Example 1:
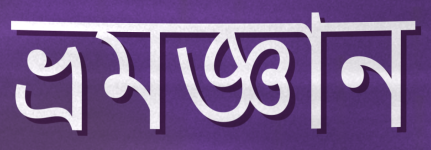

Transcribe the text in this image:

ভ্রমজ্ঞান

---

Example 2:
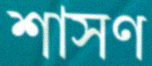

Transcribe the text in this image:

শাসণ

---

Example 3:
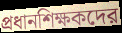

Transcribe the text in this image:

প্রধানশিক্ষকদের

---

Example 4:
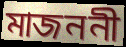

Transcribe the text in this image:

মাজননী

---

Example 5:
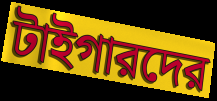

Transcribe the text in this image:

টাইগারদের